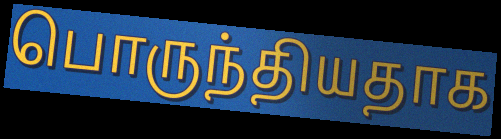
பொருந்தியதாக